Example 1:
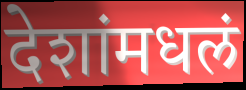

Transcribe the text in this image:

देशांमधलं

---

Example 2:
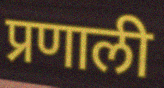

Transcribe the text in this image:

प्रणाली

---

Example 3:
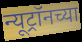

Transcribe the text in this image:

न्यूट्रॉनच्या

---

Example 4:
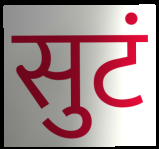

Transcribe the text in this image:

सुटं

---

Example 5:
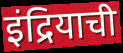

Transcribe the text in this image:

इंद्रियाची